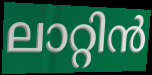
ലാറ്റിൻ